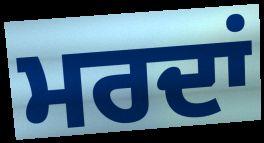
ਮਰਦਾਂ